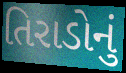
તિરાડોનું